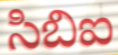
సిబిఐ